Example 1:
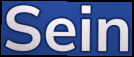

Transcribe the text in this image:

Sein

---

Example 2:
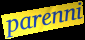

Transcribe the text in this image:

parenni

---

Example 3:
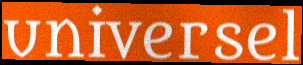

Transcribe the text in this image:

universel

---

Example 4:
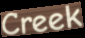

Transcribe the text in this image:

Creek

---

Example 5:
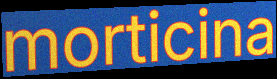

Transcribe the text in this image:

morticina